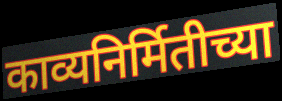
काव्यनिर्मितीच्या